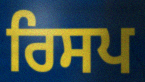
ਰਿਸਪ